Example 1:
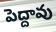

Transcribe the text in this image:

పెద్దావు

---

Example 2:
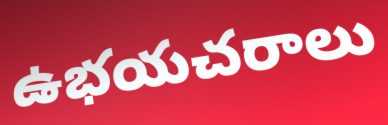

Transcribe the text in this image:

ఉభయచరాలు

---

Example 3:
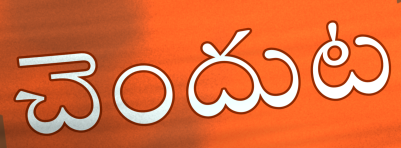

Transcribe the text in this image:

చెందుట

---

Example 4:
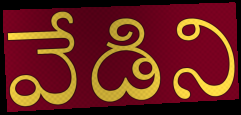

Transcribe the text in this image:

వేడిని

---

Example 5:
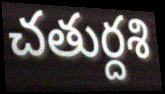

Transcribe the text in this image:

చతుర్దశి